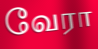
வேரா